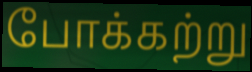
போக்கற்று